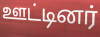
ஊட்டினர்